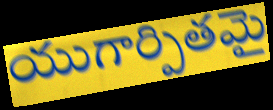
యుగార్పితమై